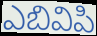
ఎబివిపి